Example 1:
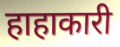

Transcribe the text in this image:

हाहाकारी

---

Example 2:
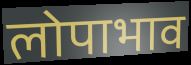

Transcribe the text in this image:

लोपाभाव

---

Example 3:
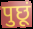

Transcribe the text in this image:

पुछूं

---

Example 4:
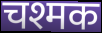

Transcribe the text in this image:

चश्मक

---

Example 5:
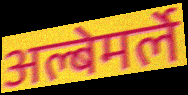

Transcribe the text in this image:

अल्बेमर्ले